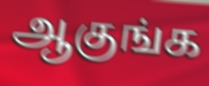
ஆகுங்க